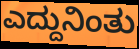
ಎದ್ದುನಿಂತು